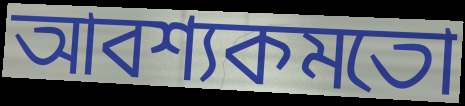
আবশ্যকমতো